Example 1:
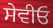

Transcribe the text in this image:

ਸੇਵੀਓ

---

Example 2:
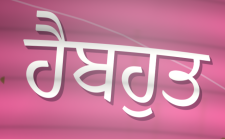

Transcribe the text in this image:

ਹੈਬਹੁਤ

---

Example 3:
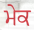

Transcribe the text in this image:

ਮੇਕ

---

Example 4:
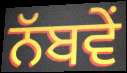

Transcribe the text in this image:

ਨੱਬਵੇਂ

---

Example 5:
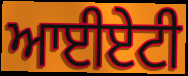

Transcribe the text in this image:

ਆਈਏਟੀ